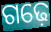
ଗଢ଼େ